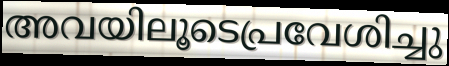
അവയിലൂടെപ്രവേശിച്ചു